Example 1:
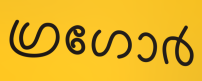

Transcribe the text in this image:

ഗ്രഗോർ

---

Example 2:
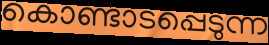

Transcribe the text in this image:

കൊണ്ടാടപ്പെടുന്ന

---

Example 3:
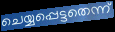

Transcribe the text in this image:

ചെയ്യപ്പെട്ടതെന്ന്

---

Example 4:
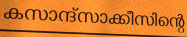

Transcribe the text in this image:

കസാന്ദ്സാക്കീസിന്റെ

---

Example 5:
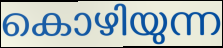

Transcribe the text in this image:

കൊഴിയുന്ന